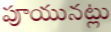
పూయునట్లు